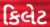
કિલેટ